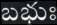
బభుః